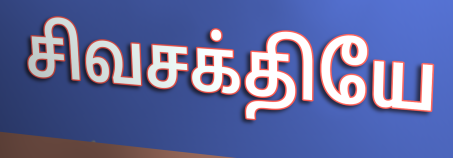
சிவசக்தியே